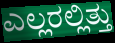
ಎಲ್ಲರಲ್ಲಿತ್ತು